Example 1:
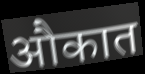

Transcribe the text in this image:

औकात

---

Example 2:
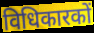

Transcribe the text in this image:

विधिकारकों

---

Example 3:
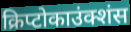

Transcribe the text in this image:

क्रिप्टोकाउंक्शंस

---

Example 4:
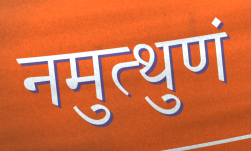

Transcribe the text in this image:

नमुत्थुणं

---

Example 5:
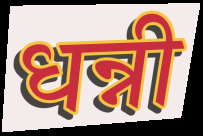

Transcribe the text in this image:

धन्नी